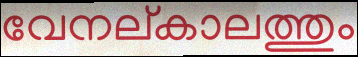
വേനല്കാലത്തും